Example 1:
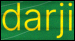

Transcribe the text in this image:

darji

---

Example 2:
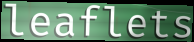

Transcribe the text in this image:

leaflets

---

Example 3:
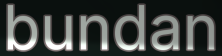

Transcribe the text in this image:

bundan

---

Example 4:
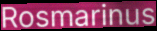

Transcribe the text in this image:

Rosmarinus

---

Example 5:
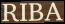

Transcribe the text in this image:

RIBA